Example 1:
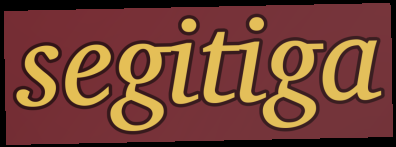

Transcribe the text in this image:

segitiga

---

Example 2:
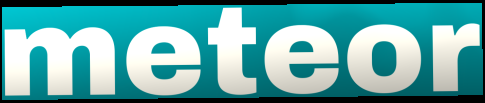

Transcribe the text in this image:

meteor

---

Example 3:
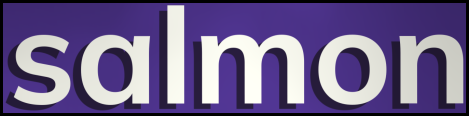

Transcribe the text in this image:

salmon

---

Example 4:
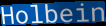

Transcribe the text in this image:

Holbein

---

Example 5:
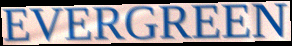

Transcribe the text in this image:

EVERGREEN